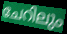
ചേറിലും